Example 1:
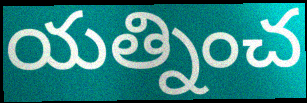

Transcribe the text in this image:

యత్నించ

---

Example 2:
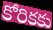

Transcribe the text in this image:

కోరికకు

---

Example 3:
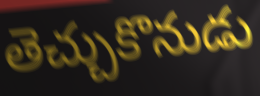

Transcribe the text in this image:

తెచ్చుకొనుడు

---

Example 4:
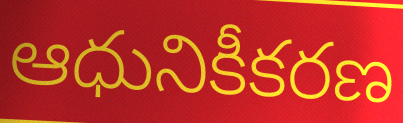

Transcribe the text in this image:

ఆధునికీకరణ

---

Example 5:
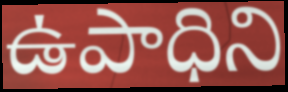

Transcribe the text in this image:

ఉపాధిని